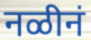
नळीनं